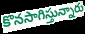
కొనసాగిస్తున్నారు